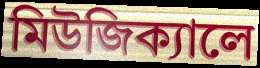
মিউজিক্যালে